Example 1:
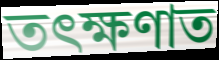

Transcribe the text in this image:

তৎক্ষণাত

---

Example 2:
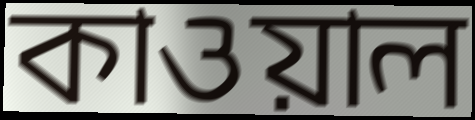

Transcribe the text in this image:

কাওয়াল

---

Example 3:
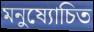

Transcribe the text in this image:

মনুষ্যোচিত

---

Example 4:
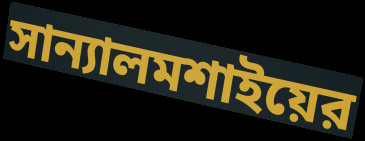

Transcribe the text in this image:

সান্যালমশাইয়ের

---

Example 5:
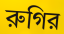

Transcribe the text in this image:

রুগির